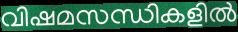
വിഷമസന്ധികളിൽ